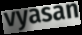
vyasan